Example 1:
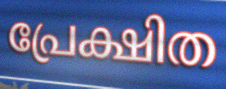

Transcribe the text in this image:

പ്രേക്ഷിത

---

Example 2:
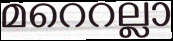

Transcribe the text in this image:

മറെറല്ലാ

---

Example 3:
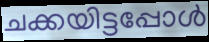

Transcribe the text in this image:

ചക്കയിട്ടപ്പോൾ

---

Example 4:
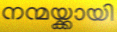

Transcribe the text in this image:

നന്മയ്ക്കായി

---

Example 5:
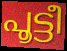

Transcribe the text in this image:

പൂട്ടീ